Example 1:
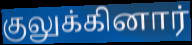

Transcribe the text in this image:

குலுக்கினார்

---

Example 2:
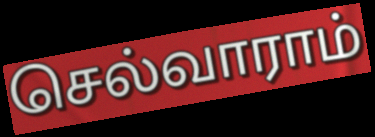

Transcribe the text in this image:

செல்வாராம்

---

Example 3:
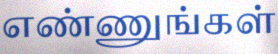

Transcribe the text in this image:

எண்ணுங்கள்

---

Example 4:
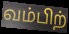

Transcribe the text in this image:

வம்பிற்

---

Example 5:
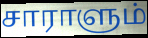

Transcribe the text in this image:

சாராளும்